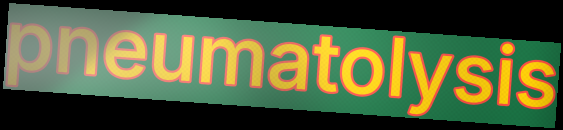
pneumatolysis